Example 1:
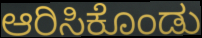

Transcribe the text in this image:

ಆರಿಸಿಕೊಂಡು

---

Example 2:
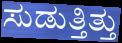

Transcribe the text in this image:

ಸುಡುತ್ತಿತ್ತು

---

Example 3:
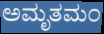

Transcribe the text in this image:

ಅಮೃತಮಂ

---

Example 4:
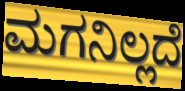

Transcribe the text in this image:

ಮಗನಿಲ್ಲದೆ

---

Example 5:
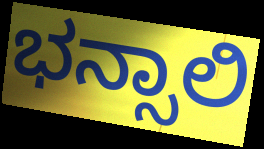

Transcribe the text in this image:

ಭನ್ಸಾಲಿ